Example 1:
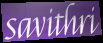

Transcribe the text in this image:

savithri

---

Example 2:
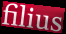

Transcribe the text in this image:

filius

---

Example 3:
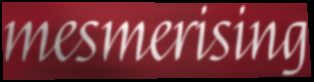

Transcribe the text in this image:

mesmerising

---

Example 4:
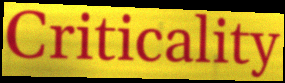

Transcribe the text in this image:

Criticality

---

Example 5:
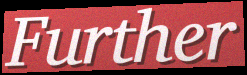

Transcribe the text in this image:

Further